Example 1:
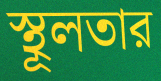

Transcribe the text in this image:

স্থূলতার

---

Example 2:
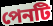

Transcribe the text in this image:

পেনটি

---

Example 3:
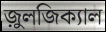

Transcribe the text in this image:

জ়ুলজিক্যাল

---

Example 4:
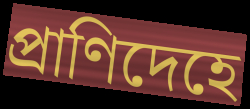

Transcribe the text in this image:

প্রাণিদেহে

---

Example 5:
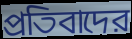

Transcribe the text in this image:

প্রতিবাদের